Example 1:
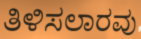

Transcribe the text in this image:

ತಿಳಿಸಲಾರವು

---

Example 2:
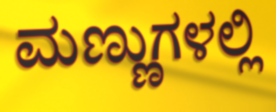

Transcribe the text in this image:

ಮಣ್ಣುಗಳಲ್ಲಿ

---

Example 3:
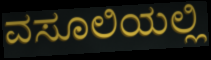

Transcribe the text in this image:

ವಸೂಲಿಯಲ್ಲಿ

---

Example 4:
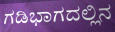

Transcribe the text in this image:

ಗಡಿಭಾಗದಲ್ಲಿನ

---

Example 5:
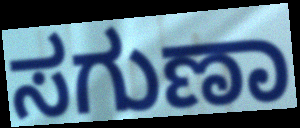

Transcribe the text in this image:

ಸಗುಣಾ